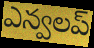
ఎన్వలప్